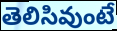
తెలిసివుంటే